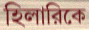
হিলারিকে